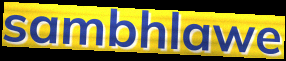
sambhlawe